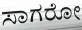
ಸಾಗರೋ